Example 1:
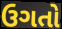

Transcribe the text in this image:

ઉગતો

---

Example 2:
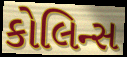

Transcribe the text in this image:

કોલિન્સ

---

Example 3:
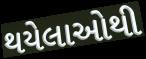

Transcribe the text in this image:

થયેલાઓથી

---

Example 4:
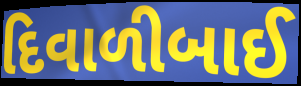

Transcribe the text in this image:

દિવાળીબાઈ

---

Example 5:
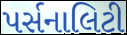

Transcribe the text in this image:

પર્સનાલિટી